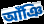
আঁঞি